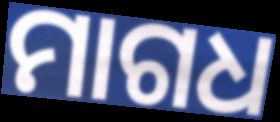
ମାଗଧ